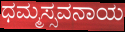
ಧಮ್ಮಸ್ಸವನಾಯ